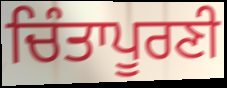
ਚਿੰਤਾਪੂਰਣੀ